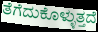
ತೆಗೆದುಕೊಳ್ಳುತ್ತದೆ